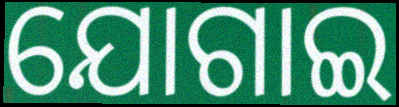
ଯୋଗାଇ